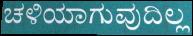
ಚಳಿಯಾಗುವುದಿಲ್ಲ